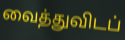
வைத்துவிடப்